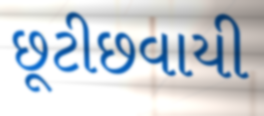
છૂટીછવાયી